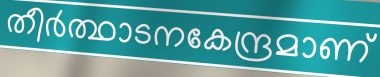
തീർത്ഥാടനകേന്ദ്രമാണ്